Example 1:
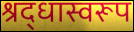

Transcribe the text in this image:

श्रद्धास्वरूप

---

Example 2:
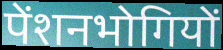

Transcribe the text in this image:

पेंशनभोगियों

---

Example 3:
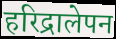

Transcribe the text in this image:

हरिद्रालेपन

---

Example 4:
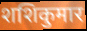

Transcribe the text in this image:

शशिकुमार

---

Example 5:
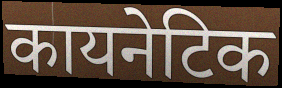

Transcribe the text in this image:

कायनेटिक